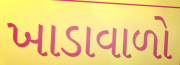
ખાડાવાળો